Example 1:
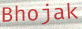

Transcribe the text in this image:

Bhojak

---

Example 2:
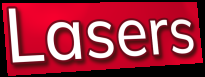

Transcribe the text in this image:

Lasers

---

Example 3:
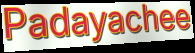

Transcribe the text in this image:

Padayachee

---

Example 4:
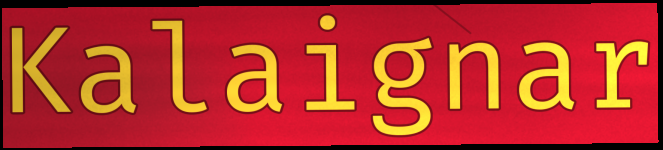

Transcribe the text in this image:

Kalaignar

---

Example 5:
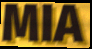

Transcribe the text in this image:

MIA